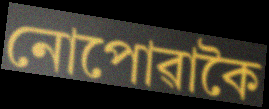
নোপোৱাকৈ